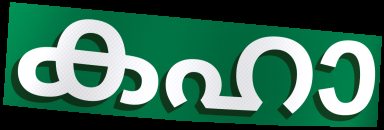
കഹാ